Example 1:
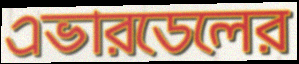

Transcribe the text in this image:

এভারডেলের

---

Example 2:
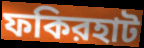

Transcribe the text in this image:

ফকিরহাট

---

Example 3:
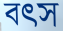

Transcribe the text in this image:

বৎস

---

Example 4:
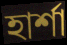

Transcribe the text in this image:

হার্শা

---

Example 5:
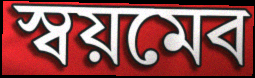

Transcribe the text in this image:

স্বয়মেব